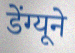
डेंग्यूने